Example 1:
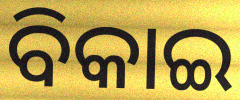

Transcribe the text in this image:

ବିକାଇ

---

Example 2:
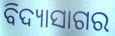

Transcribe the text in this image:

ବିଦ୍ୟାସାଗର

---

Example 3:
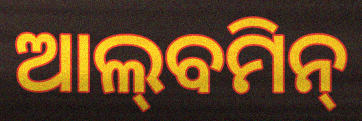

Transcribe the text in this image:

ଆଲ୍‌ବମିନ୍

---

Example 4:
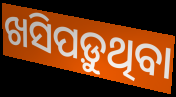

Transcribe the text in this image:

ଖସିପଡ଼ୁଥିବା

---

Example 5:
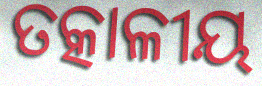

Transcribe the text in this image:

ତତ୍କାଳୀୟ